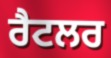
ਰੈਟਲਰ